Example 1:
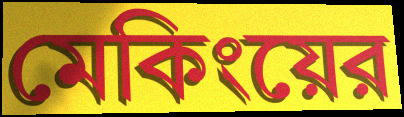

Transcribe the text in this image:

মেকিংয়ের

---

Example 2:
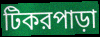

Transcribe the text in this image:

টিকরপাড়া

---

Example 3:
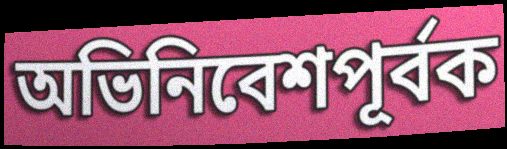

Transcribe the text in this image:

অভিনিবেশপূর্বক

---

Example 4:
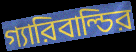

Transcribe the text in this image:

গ্যারিবাল্ডির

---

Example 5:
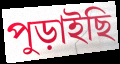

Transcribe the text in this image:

পুড়াইছি